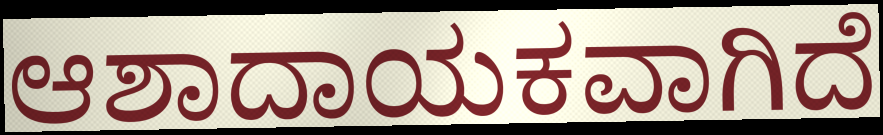
ಆಶಾದಾಯಕವಾಗಿದೆ